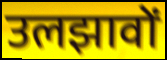
उलझावों